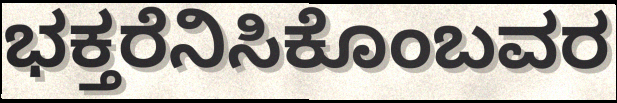
ಭಕ್ತರೆನಿಸಿಕೊಂಬವರ